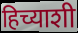
हिच्याशी